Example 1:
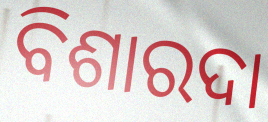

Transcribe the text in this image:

ବିଶାରଦା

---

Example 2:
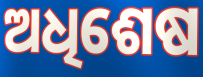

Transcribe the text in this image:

ଅଧିଶେଷ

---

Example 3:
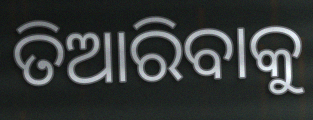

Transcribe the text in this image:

ତିଆରିବାକୁ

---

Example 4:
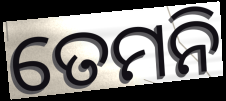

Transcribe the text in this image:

ତେମନି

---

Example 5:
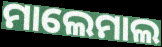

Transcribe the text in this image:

ମାଲେମାଲ